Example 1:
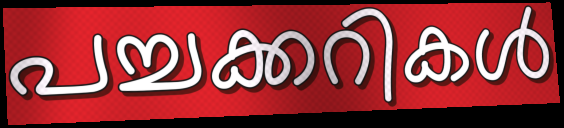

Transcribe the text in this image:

പച്ചക്കറികൾ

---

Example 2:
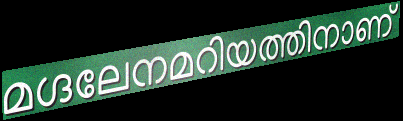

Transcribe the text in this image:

മഗ്ദലേനമറിയത്തിനാണ്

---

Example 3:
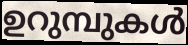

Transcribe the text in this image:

ഉറുമ്പുകൾ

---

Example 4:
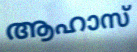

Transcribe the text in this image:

ആഹാസ്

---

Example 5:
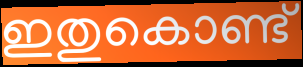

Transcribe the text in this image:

ഇതുകൊണ്ട്